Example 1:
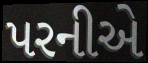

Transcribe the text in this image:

પરનીએ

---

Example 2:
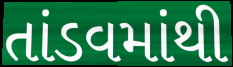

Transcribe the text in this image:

તાંડવમાંથી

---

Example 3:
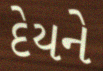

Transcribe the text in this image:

દેયને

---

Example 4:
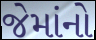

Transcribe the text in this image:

જેમાંનો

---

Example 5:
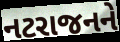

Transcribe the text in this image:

નટરાજનને